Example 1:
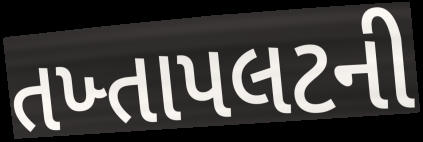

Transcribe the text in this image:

તખ્તાપલટની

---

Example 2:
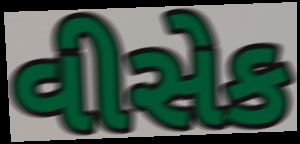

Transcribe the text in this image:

વીસેક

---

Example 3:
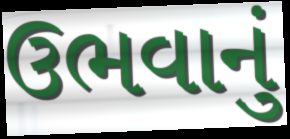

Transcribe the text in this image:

ઉભવાનું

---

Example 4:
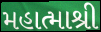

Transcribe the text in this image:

મહાત્માશ્રી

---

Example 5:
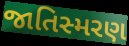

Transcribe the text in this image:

જાતિસ્મરણ